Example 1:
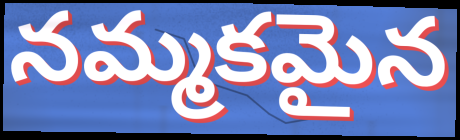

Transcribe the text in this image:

నమ్మకమైన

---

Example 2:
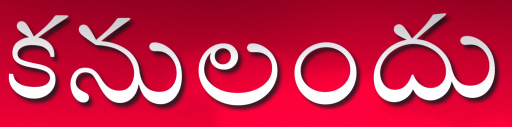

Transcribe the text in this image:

కనులందు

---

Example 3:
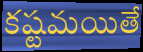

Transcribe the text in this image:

కష్టమయితే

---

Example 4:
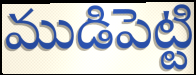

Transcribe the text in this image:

ముడిపెట్టి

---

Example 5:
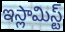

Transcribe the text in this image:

ఇస్లామిస్ట్